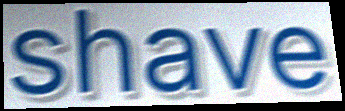
shave